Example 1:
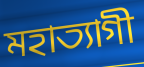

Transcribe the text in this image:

মহাত্যাগী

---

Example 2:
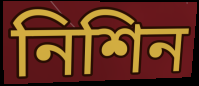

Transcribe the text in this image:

নিশিন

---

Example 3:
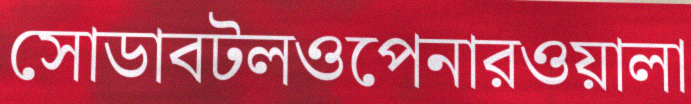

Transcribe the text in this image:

সোডাবটলওপেনারওয়ালা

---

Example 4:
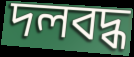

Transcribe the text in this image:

দলবদ্ধ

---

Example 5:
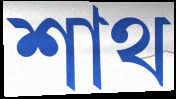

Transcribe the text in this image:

শাথ